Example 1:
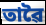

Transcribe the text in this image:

তাৱৈ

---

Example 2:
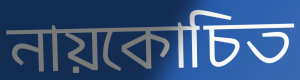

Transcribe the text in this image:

নায়কোচিত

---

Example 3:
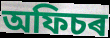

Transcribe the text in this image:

অফিচৰ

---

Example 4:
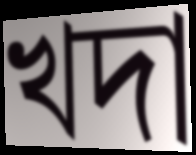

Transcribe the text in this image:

খদা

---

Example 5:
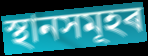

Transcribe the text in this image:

স্থানসমূহৰ